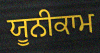
ਯੂਨੀਕਾਮ